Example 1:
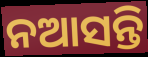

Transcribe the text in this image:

ନଆସନ୍ତି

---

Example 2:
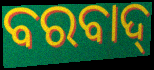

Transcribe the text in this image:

ବରବାଦ୍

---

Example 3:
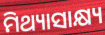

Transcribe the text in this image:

ମିଥ୍ୟାସାକ୍ଷ୍ୟ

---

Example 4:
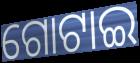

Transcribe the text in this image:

ଗୋଟାଇ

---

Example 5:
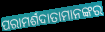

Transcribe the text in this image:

ପରାମର୍ଶଦାତାମାନଙ୍କର